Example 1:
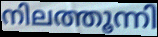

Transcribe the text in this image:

നിലത്തൂന്നി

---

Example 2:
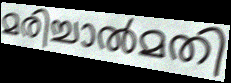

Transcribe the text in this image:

മരിച്ചാൽമതി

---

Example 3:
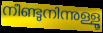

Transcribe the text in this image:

നീണ്ടുനിന്നുള്ളൂ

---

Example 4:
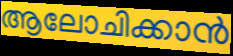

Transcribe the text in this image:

ആലോചിക്കാൻ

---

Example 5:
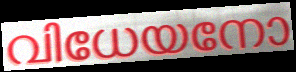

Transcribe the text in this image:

വിധേയനോ